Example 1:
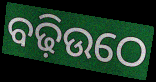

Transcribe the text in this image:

ବଢ଼ିଉଠେ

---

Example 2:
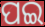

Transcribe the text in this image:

ପଇ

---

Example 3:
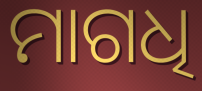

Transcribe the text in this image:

ମାଗଧି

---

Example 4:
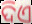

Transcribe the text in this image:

ଦିଏ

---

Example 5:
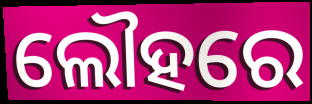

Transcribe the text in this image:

ଲୌହରେ